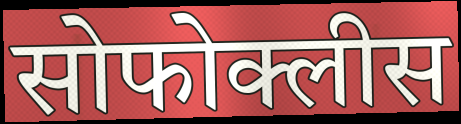
सोफोक्लीस